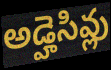
అడ్హెసివ్లు